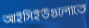
আইসিইউগুলোতে